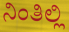
ನಿಂತಿಲ್ಲಿ